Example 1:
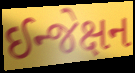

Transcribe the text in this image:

ઈન્જેક્ષન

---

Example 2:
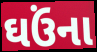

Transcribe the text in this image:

ઘઉંના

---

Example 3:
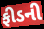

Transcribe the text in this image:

ફીડની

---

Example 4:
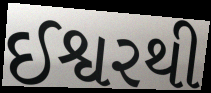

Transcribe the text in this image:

ઈશ્વરથી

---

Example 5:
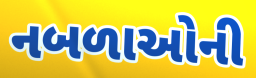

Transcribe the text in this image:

નબળાઓની